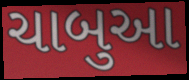
ચાબુઆ